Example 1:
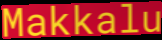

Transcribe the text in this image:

Makkalu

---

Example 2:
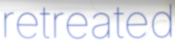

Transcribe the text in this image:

retreated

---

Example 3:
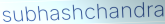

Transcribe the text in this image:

subhashchandra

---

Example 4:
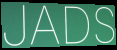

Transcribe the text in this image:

JADS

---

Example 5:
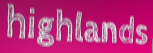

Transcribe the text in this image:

highlands